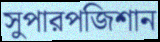
সুপারপজিশান